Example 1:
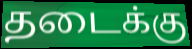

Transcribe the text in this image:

தடைக்கு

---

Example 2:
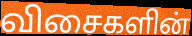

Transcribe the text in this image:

விசைகளின்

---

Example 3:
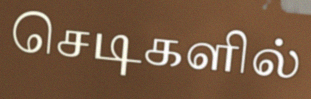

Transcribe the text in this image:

செடிகளில்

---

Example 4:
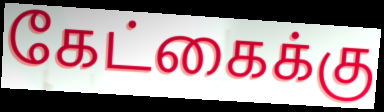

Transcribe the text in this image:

கேட்கைக்கு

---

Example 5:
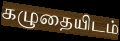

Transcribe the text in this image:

கழுதையிடம்